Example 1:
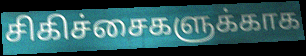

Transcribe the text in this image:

சிகிச்சைகளுக்காக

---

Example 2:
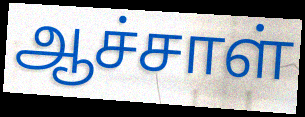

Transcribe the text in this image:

ஆச்சாள்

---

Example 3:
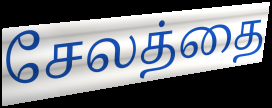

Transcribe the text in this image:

சேலத்தை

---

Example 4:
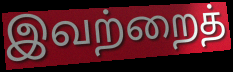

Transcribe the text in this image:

இவற்றைத்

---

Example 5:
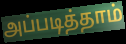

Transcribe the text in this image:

அப்படித்தாம்